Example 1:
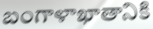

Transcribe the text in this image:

బంగాళాఖాతానికి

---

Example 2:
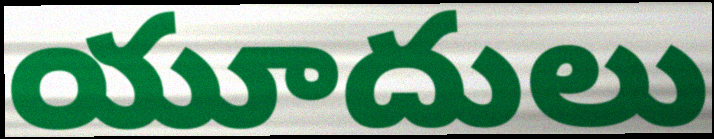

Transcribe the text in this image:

యూదులు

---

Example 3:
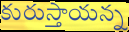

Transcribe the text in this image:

కురుస్తాయన్న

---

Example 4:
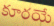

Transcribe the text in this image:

కూరయే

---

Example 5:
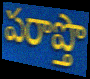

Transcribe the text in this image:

పరాప్తొ